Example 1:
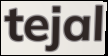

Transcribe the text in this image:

tejal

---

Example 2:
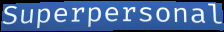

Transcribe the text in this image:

Superpersonal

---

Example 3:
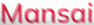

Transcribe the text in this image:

Mansai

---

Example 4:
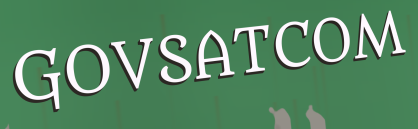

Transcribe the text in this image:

GOVSATCOM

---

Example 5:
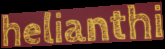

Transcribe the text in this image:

helianthi